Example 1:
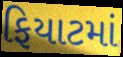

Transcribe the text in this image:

ફિયાટમાં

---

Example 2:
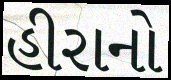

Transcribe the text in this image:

હીરાનો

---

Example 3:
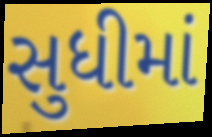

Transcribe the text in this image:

સુધીમાં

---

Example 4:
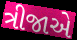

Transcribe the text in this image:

ત્રીજાએ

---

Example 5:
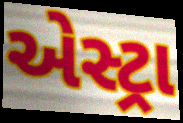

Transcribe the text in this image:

એસ્ટ્રા